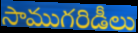
సాముగరిడీలు